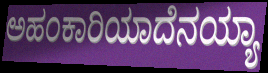
ಅಹಂಕಾರಿಯಾದೆನಯ್ಯಾ